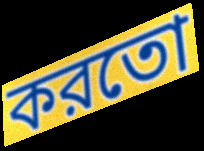
করতো